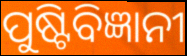
ପୁଷ୍ଟିବିଜ୍ଞାନୀ